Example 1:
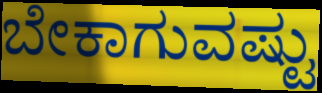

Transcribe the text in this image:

ಬೇಕಾಗುವಷ್ಟು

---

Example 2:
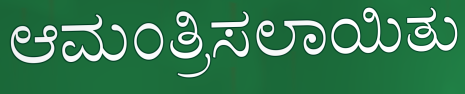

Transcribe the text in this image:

ಆಮಂತ್ರಿಸಲಾಯಿತು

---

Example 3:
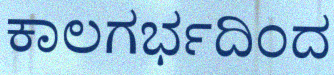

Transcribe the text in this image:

ಕಾಲಗರ್ಭದಿಂದ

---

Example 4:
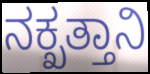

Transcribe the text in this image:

ನಕ್ಖತ್ತಾನಿ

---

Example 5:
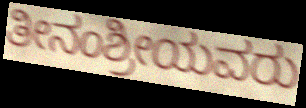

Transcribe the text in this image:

ತೀನಂಶ್ರೀಯವರು